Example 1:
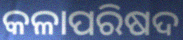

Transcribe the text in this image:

କଳାପରିଷଦ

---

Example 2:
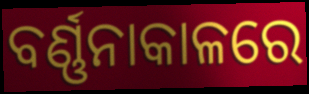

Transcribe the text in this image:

ବର୍ଣ୍ଣନାକାଳରେ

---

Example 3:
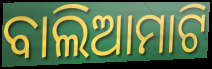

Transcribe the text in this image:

ବାଲିଆମାଟି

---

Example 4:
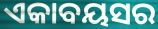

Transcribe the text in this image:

ଏକାବୟସର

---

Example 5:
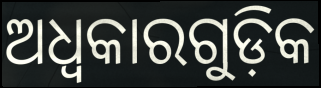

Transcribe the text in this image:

ଅଧ୍ବକାରଗୁଡ଼ିକ